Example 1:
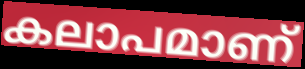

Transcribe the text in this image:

കലാപമാണ്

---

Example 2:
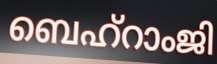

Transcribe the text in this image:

ബെഹ്റാംജി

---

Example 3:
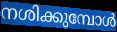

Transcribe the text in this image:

നശിക്കുമ്പോൾ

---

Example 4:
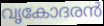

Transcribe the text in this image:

വൃകോദരൻ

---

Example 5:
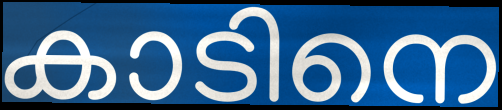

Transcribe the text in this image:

കാടിനെ